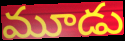
మూడు